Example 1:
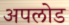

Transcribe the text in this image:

अपलोड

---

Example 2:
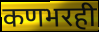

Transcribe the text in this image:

कणभरही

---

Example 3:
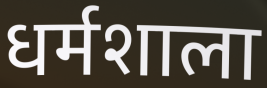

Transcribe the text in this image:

धर्मशाला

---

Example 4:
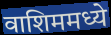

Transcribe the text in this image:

वाशिममध्ये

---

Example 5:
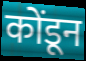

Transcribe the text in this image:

कोंडून